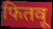
फितवू